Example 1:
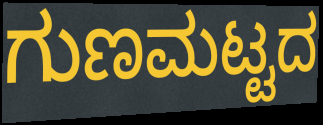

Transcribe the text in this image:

ಗುಣಮಟ್ಟದ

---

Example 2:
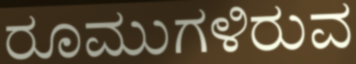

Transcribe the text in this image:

ರೂಮುಗಳಿರುವ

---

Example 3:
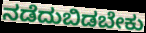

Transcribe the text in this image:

ನಡೆದುಬಿಡಬೇಕು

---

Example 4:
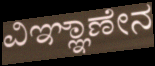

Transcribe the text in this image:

ವಿಞ್ಞಾಣೇನ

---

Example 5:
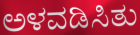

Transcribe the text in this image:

ಅಳವಡಿಸಿತು